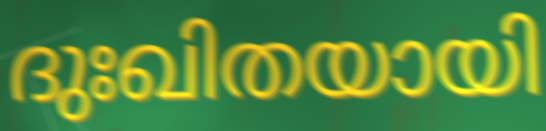
ദുഃഖിതയായി